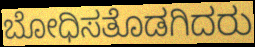
ಬೋಧಿಸತೊಡಗಿದರು